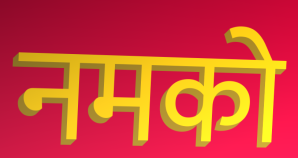
नमको